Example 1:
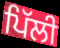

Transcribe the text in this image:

ਪਿੱਲੀ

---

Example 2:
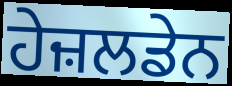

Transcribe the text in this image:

ਹੇਜ਼ਲਡੇਨ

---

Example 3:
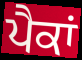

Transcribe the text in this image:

ਪੈਕਾਂ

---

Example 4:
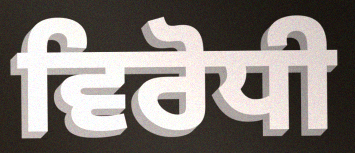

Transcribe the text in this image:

ਵਿਰੋਧੀ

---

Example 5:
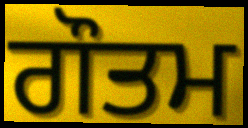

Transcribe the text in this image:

ਗੌਤਮ